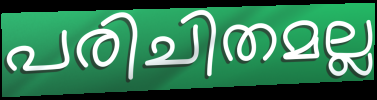
പരിചിതമല്ല